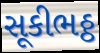
સૂકીભઠ્ઠ